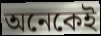
অনেকেই